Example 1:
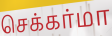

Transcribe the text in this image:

செக்கர்மா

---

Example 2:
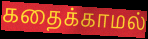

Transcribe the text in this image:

கதைக்காமல்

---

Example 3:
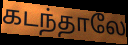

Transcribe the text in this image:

கடந்தாலே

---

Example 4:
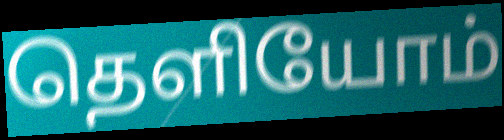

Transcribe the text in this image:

தெளியோம்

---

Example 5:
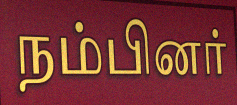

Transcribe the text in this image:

நம்பினர்